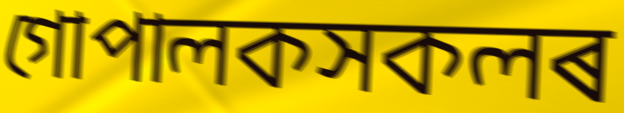
গোপালকসকলৰ